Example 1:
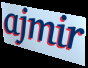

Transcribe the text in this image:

ajmir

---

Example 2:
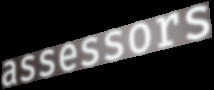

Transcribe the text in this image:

assessors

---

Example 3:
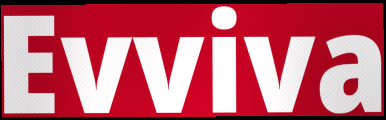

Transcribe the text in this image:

Evviva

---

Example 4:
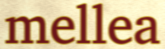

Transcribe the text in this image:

mellea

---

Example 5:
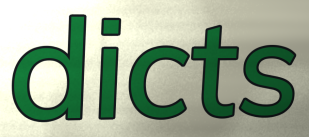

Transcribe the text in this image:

dicts